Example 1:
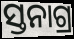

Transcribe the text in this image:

ସ୍ତନାଗ୍ର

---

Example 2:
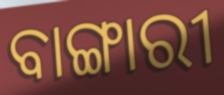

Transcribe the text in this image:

ବାଙ୍ଗାରୀ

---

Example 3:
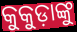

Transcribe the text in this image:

କୁକୁଡ଼ାଙ୍କୁ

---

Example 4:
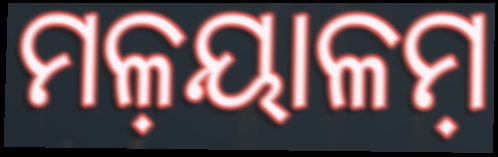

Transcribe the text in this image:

ମଳ଼ୟାଳମ଼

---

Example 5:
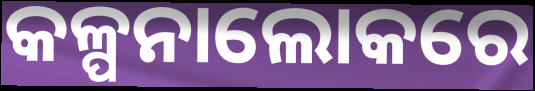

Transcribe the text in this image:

କଳ୍ପନାଲୋକରେ